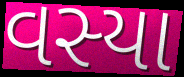
વસ્યા